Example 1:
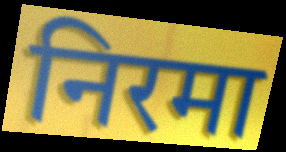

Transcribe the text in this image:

निरमा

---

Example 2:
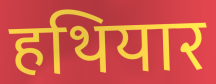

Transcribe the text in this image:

हथियार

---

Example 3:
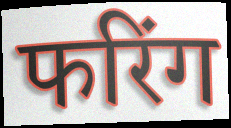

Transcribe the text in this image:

फरिंग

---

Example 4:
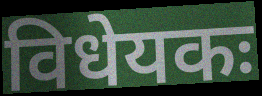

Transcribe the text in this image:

विधेयकः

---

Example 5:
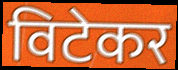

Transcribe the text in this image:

विटेकर